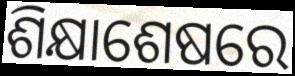
ଶିକ୍ଷାଶେଷରେ